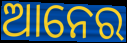
ଆନେର